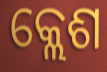
କ୍ଲେଶ